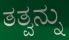
ತತ್ವನ್ನು